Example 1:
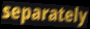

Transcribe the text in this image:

separately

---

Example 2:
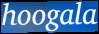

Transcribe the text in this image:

hoogala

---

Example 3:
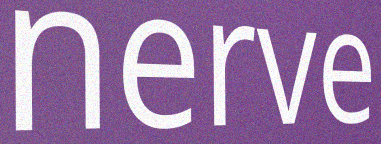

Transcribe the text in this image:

nerve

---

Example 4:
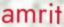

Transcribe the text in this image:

amrit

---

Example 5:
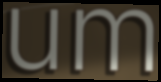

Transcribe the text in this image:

um